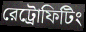
রেট্রোফিটিং